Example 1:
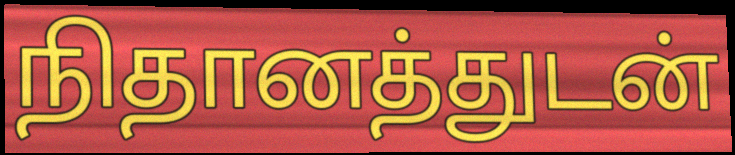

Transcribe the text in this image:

நிதானத்துடன்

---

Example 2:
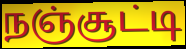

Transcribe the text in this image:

நஞ்சூட்டி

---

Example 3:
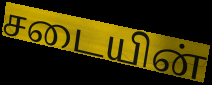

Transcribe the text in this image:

சடையின்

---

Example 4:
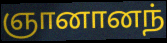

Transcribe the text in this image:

ஞானானந்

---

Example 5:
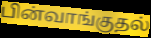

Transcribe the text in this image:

பின்வாங்குதல்